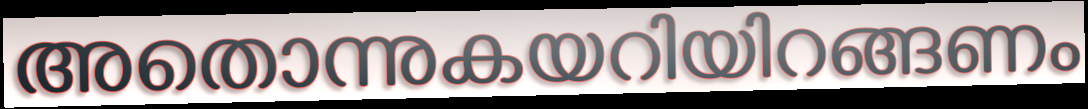
അതൊന്നുകയറിയിറങ്ങണം